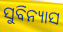
ସୁବିନ୍ୟାସ